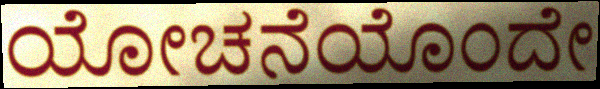
ಯೋಚನೆಯೊಂದೇ